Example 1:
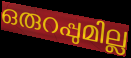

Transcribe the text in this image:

ഒരുറപ്പുമില്ല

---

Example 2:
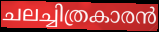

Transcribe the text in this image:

ചലച്ചിത്രകാരൻ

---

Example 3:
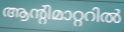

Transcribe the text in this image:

ആന്റിമാറ്ററിൽ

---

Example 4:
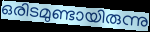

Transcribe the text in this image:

ഒരിടമുണ്ടായിരുന്നു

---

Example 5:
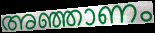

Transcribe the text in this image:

അഞ്ഞാണം